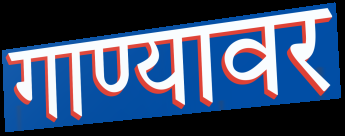
गाण्यावर